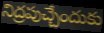
నిద్రపుచ్చేందుకు